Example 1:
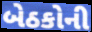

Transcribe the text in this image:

બેઠકોની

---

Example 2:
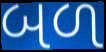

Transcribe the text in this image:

બળ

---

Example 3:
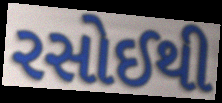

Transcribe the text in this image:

રસોઈથી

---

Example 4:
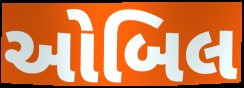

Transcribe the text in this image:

ઓબિલ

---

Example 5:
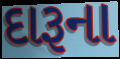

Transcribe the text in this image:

દારૂના